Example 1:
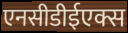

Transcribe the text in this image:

एनसीडीईएक्स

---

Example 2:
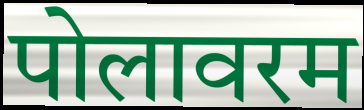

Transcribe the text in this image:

पोलावरम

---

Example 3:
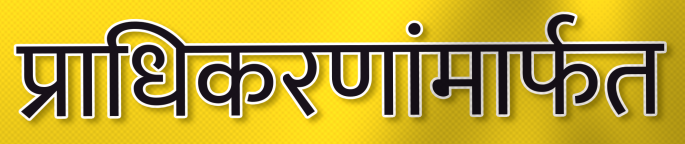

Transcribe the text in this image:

प्राधिकरणांमार्फत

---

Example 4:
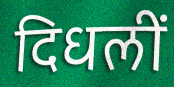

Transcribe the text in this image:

दिधलीं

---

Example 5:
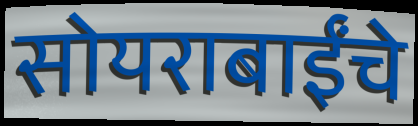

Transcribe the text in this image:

सोयराबाईंचे